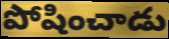
పోషించాడు